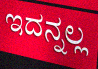
ಇದನ್ನಲ್ಲ